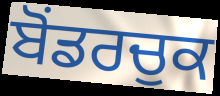
ਬੋਂਡਰਚੁਕ